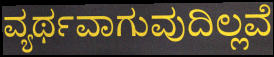
ವ್ಯರ್ಥವಾಗುವುದಿಲ್ಲವೆ